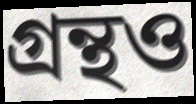
গ্ৰন্থও